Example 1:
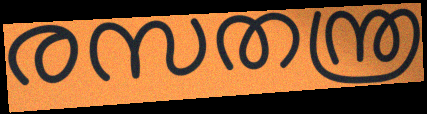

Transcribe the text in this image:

രസതന്ത്ര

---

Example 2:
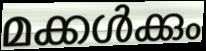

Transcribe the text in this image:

മക്കൾക്കും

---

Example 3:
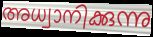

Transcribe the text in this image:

അധ്വാനിക്കുന്നു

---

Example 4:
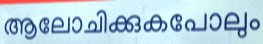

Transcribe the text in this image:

ആലോചിക്കുകപോലും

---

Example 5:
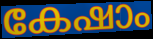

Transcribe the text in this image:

കേഷാം